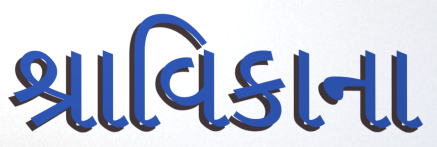
શ્રાવિકાના